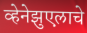
व्हेनेझुएलाचे